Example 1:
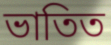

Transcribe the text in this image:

ভাতিত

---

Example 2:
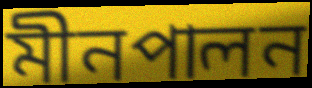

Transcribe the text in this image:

মীনপালন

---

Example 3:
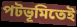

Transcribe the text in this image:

পটভূমিতেই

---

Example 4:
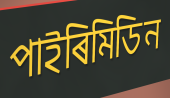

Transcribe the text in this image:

পাইৰিমিডিন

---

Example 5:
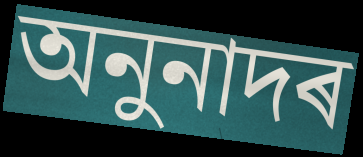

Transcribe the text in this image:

অনুনাদৰ